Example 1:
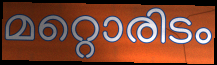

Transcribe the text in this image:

മറ്റൊരിടം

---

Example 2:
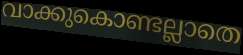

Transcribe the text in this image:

വാക്കുകൊണ്ടല്ലാതെ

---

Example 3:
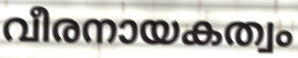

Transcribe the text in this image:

വീരനായകത്വം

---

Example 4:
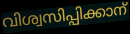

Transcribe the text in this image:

വിശ്വസിപ്പിക്കാന്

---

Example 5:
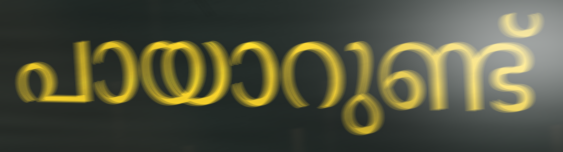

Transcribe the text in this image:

പായാറുണ്ട്